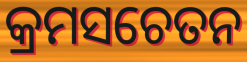
କ୍ରମସଚେତନ